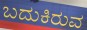
ಬದುಕಿರುವ